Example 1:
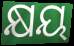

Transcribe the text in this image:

କ୍ଷୟ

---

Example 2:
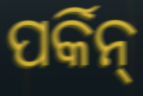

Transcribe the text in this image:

ପର୍କିନ୍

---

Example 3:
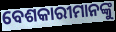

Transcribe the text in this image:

ବେଶକାରୀମାନଙ୍କୁ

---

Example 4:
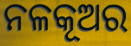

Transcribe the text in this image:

ନଳକୂଅର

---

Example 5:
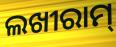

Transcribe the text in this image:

ଲଖୀରାମ୍